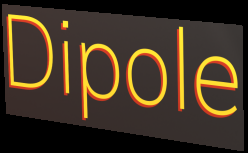
Dipole